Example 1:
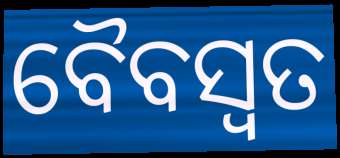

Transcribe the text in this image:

ବୈବସ୍ଵତ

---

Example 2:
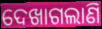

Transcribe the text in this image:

ଦେଖାଗଲାଣି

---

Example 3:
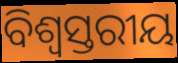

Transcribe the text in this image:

ବିଶ୍ବସ୍ତରୀୟ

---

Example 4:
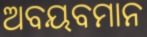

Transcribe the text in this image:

ଅବୟବମାନ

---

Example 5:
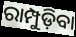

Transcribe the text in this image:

ରାମ୍ପୁଡ଼ିବା